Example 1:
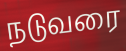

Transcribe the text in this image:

நடுவரை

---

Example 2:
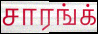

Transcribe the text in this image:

சாரங்க்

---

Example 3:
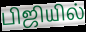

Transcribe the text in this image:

பிஜியில்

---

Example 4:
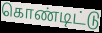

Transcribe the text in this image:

கொண்டிட்டு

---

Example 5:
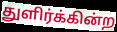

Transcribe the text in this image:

துளிர்க்கின்ற